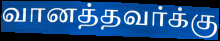
வானத்தவர்க்கு